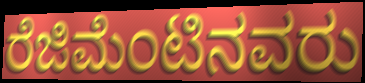
ರೆಜಿಮೆಂಟಿನವರು